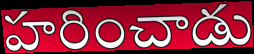
హరించాడు